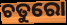
ଚତୁରୋ